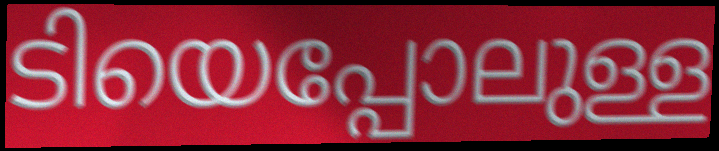
ടിയെപ്പോലുള്ള